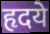
हृदये